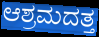
ಆಶ್ರಮದತ್ತ